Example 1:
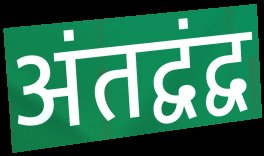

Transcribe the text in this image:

अंतद्वंद्व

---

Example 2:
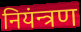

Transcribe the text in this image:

नियंन्त्रण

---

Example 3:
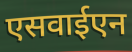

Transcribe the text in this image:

एसवाईएन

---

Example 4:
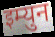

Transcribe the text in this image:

इम्युन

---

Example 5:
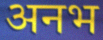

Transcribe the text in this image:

अनभ